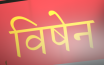
विषेन